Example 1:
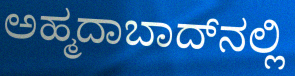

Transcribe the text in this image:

ಅಹ್ಮದಾಬಾದ್‍ನಲ್ಲಿ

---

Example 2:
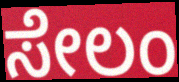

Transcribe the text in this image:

ಸೇಲಂ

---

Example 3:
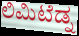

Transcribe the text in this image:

ಲಿಮಿಟೆಡ್ನ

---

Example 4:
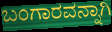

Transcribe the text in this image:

ಬಂಗಾರವನ್ನಾಗಿ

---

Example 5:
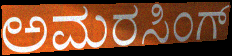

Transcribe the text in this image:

ಅಮರಸಿಂಗ್